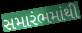
સમારંભમાંથી